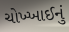
ચોખ્ખાઈનું